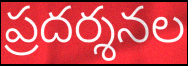
ప్రదర్శనల